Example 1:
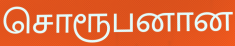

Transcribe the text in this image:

சொரூபனான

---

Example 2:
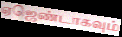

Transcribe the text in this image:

ஏஜெண்டாகவும்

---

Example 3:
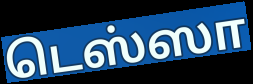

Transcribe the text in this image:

டெஸ்ஸா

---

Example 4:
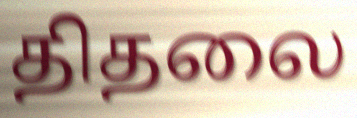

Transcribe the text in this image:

திதலை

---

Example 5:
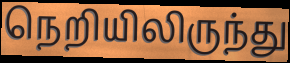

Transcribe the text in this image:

நெறியிலிருந்து